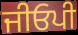
ਜੀਓਪੀ